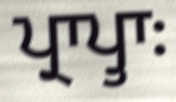
ਪ੍ਰਾਪ੍ਤਾਃ